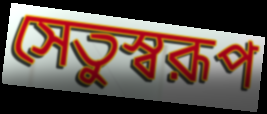
সেতুস্বরূপ